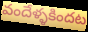
వందేళ్ళకిందట